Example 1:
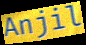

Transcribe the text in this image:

Anjil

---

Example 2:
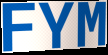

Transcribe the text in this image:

FYM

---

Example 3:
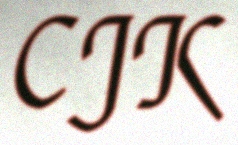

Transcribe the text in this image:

CJK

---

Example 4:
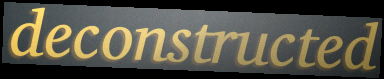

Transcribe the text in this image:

deconstructed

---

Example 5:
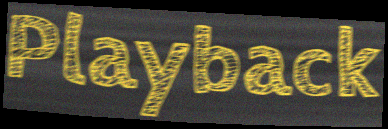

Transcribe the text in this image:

Playback